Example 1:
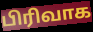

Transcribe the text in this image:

பிரிவாக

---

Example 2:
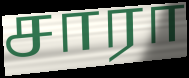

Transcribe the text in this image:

சாரா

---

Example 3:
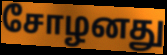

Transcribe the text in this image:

சோழனது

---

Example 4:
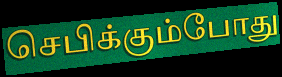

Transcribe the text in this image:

செபிக்கும்போது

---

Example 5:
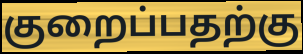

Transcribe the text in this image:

குறைப்பதற்கு